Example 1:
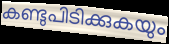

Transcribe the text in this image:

കണ്ടുപിടിക്കുകയും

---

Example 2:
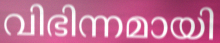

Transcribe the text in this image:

വിഭിന്നമായി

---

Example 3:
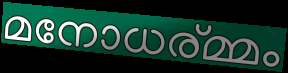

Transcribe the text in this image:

മനോധര്മ്മം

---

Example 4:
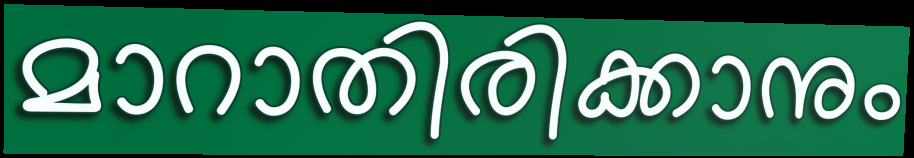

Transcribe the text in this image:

മാറാതിരിക്കാനും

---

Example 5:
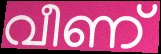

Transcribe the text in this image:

വീണ്